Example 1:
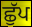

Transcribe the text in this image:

ਛੁੱਪ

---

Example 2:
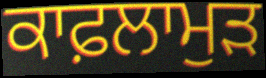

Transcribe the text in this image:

ਕਾਫ਼ਲਾਮੁੜ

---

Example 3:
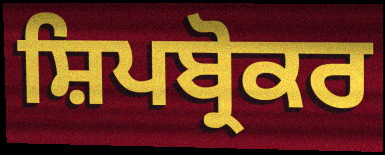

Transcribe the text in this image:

ਸ਼ਿਪਬ੍ਰੋਕਰ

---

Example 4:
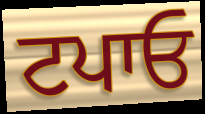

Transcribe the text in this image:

ਟਪਾਓ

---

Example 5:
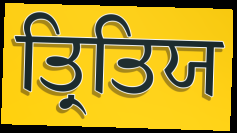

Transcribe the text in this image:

ਤ੍ਰਿਤਿਯ